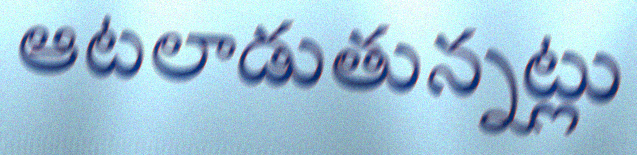
ఆటలాడుతున్నట్లు